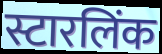
स्टारलिंक